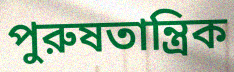
পুরুষতান্ত্রিক